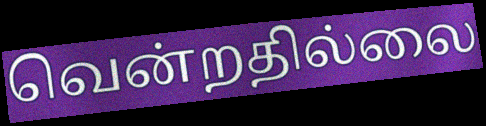
வென்றதில்லை